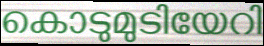
കൊടുമുടിയേറി